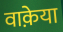
वाक़ेया